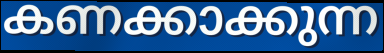
കണക്കാക്കുന്ന